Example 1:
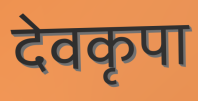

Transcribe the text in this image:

देवकृपा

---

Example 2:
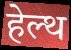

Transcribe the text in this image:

हेल्थ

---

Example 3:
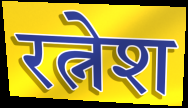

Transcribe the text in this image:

रत्नेश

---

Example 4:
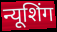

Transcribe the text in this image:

न्यूशिंग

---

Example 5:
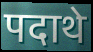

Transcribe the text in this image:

पदाथे